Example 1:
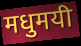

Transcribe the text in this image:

मधुमयी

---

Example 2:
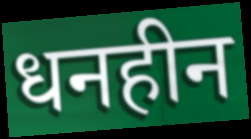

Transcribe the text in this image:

धनहीन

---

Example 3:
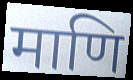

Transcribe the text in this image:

माणि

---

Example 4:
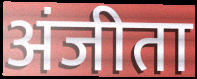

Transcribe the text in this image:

अंजीता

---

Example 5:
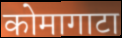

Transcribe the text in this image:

कोमागाटा